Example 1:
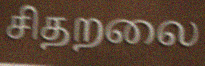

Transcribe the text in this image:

சிதறலை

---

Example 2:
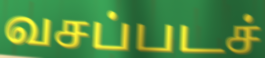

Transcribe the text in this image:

வசப்படச்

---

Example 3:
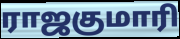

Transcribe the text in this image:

ராஜகுமாரி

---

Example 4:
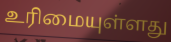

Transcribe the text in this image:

உரிமையுள்ளது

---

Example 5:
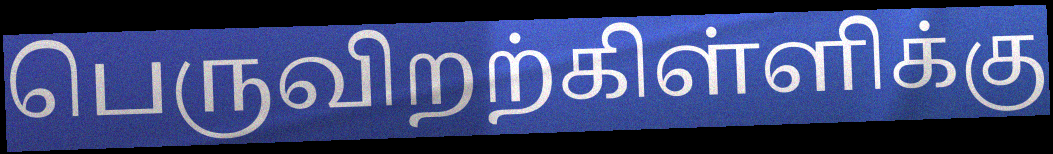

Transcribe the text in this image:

பெருவிறற்கிள்ளிக்கு